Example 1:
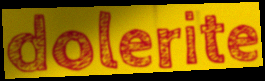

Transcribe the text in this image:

dolerite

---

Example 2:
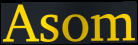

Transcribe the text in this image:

Asom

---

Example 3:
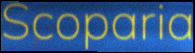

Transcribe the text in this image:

Scoparia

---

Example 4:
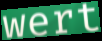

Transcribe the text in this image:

wert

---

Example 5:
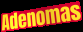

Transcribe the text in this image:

Adenomas